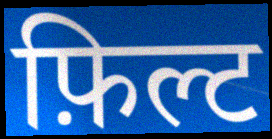
फ़िल्ट